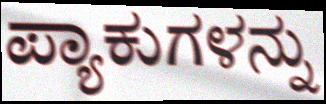
ಪ್ಯಾಕುಗಳನ್ನು